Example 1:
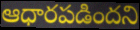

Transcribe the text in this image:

ఆధారపడిందని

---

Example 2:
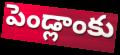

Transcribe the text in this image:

పెండ్లాంకు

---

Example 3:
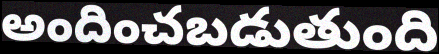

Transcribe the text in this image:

అందించబడుతుంది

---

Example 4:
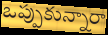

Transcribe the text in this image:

ఒప్పుకున్నారా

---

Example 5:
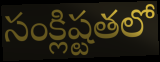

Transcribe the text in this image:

సంక్లిష్టతలో